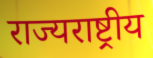
राज्यराष्ट्रीय